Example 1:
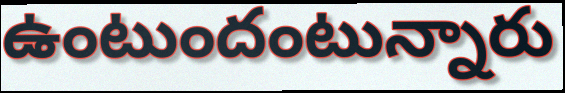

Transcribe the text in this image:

ఉంటుందంటున్నారు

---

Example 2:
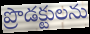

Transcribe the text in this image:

ప్రొడక్టులను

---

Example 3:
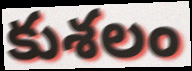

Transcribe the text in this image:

కుశలం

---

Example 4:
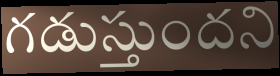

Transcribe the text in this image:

గడుస్తుందని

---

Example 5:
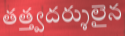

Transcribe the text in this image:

తత్త్వదర్శులైన